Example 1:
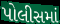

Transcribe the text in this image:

પોલીસમાં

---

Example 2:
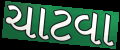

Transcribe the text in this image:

ચાટવા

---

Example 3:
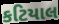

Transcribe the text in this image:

કટિયાલ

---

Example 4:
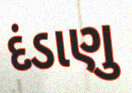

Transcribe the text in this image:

દંડાણુ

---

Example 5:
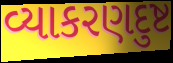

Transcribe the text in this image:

વ્યાકરણદુષ્ટ